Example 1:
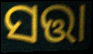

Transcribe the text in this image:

ସତ୍ତା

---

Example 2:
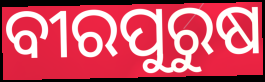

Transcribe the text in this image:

ବୀରପୁରୁଷ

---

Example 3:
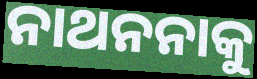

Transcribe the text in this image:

ନାଥନନାକୁ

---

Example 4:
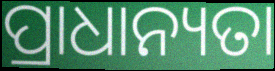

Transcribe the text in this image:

ପ୍ରାଧାନ୍ୟତା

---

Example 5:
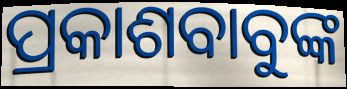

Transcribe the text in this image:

ପ୍ରକାଶବାବୁଙ୍କ